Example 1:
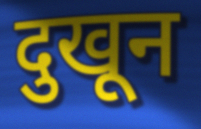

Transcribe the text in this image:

दुखून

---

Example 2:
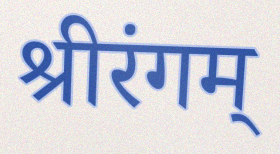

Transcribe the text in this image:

श्रीरंगम्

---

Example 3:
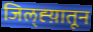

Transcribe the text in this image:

जिल्ह्य़ातून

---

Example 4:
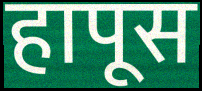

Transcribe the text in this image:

हापूस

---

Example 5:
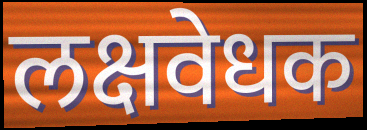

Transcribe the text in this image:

लक्षवेधक